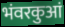
भंवरकुआं